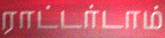
ராட்டர்டாம்